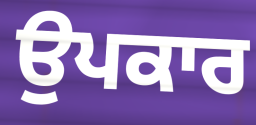
ਉਪਕਾਰ